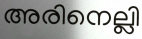
അരിനെല്ലി